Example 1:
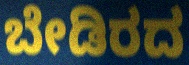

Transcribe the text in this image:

ಬೇಡಿರದ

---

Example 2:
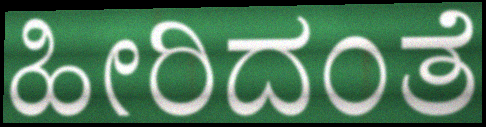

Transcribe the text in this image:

ಹೀರಿದಂತೆ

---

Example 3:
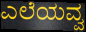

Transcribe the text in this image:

ಎಲೆಯವ್ವ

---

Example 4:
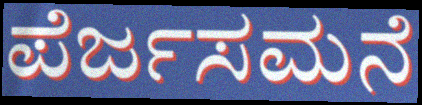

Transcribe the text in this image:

ಪೆರ್ಜಸಮನೆ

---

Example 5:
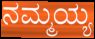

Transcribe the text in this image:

ನಮ್ಮಯ್ಯ